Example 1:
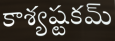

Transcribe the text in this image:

కాశ్యష్టకమ్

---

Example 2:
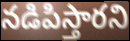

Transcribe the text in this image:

నడిపిస్తారని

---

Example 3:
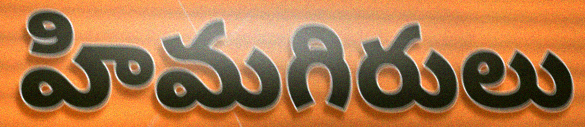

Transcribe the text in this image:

హిమగిరులు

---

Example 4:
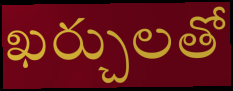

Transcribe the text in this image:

ఖర్చులతో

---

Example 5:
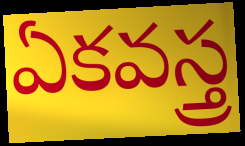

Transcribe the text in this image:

ఏకవస్త్ర